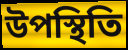
উপস্থিতি